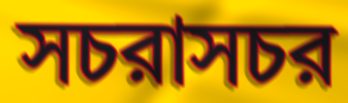
সচরাসচর